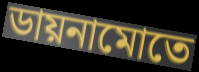
ডায়নামোতে